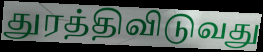
துரத்திவிடுவது